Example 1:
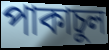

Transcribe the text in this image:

পাকাচুল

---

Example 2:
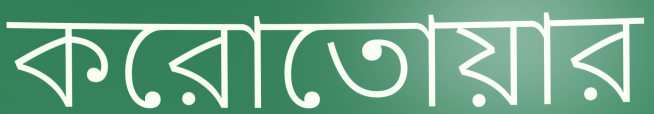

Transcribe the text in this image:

করোতোয়ার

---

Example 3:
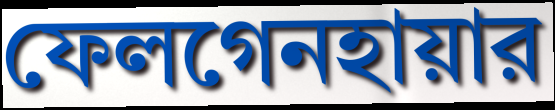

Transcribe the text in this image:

ফেলগেনহায়ার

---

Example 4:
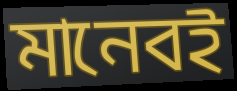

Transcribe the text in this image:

মানেবই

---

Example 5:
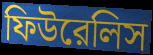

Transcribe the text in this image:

ফিউরেলিস